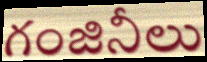
గంజినీలు